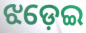
ଝଡ଼େଇ